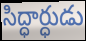
సిద్ధార్ధుడు